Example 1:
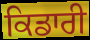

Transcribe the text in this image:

ਕਿਡਾਰੀ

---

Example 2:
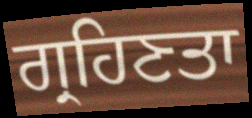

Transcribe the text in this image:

ਗ੍ਰਹਿਣਤਾ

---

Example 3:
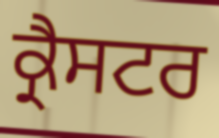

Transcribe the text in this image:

ਕ੍ਰੈਸਟਰ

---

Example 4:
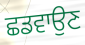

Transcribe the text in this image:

ਛਡਵਾਉਣ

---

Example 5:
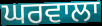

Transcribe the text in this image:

ਘਰਵਾਲਾ